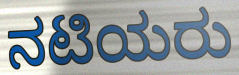
ನಟಿಯರು